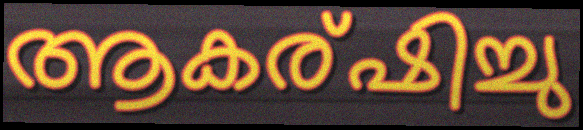
ആകര്ഷിച്ചു